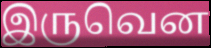
இருவென